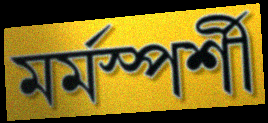
মর্মস্পর্শী